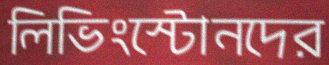
লিভিংস্টোনদের